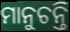
ମାନୁଚନ୍ତି